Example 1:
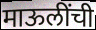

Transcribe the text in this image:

माऊलींची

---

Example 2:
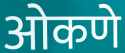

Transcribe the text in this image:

ओकणे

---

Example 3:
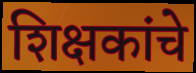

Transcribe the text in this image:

शिक्षकांचे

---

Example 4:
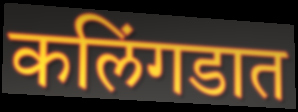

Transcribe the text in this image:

कलिंगडात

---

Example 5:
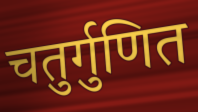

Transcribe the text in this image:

चतुर्गुणित